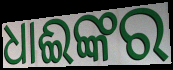
ଧାଈଙ୍କର